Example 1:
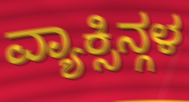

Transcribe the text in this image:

ವ್ಯಾಕ್ಸಿನ್ಗಳ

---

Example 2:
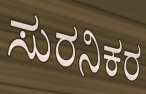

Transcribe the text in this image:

ಸುರನಿಕರ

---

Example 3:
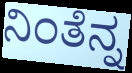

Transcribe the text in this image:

ನಿಂತೆನ್ನ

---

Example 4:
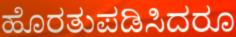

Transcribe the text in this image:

ಹೊರತುಪಡಿಸಿದರೂ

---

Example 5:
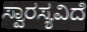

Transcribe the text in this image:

ಸ್ವಾರಸ್ಯವಿದೆ